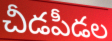
చీడపీడల